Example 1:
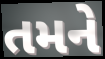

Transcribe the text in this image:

તમને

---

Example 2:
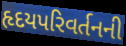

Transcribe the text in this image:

હૃદયપરિવર્તનની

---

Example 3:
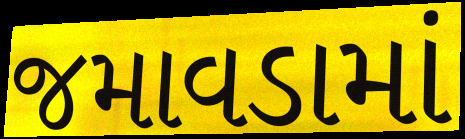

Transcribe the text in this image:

જમાવડામાં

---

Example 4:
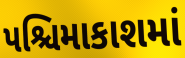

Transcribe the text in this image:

પશ્ચિમાકાશમાં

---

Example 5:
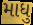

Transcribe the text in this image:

માધુ